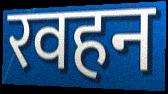
रवहन